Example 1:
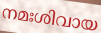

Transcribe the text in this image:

നമഃശിവായ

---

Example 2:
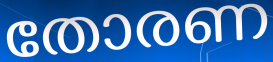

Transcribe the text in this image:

തോരണ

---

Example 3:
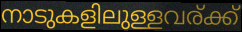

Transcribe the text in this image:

നാടുകളിലുള്ളവര്ക്ക്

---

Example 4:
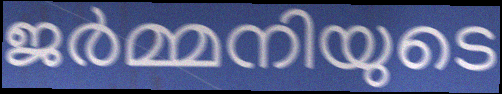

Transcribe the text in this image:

ജർമ്മനിയുടെ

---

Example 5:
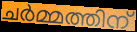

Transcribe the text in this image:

ചർമ്മത്തിന്